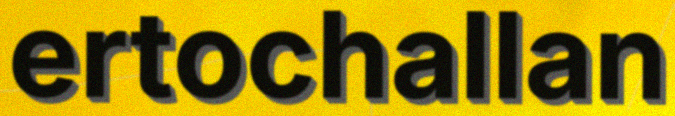
ertochallan